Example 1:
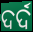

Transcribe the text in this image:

ଦର୍ଦ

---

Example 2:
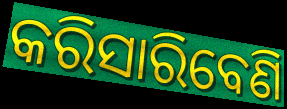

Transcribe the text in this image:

କରିସାରିବେଣି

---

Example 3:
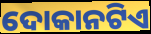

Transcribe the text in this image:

ଦୋକାନଟିଏ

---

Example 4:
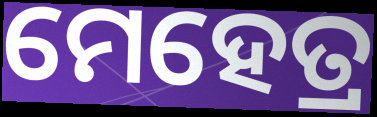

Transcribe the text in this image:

ମେହେତ୍ର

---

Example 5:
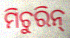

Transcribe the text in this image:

ମିଚୁରିନ୍